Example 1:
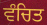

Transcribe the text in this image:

ਵੰਚਿਤ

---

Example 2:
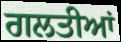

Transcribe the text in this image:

ਗਲਤੀਆਂ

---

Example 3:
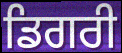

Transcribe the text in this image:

ਡਿਗਰੀ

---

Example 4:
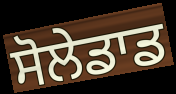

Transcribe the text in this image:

ਸੋਲੇਡਾਡ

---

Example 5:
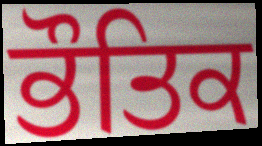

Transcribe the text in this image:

ਭੌਤਿਕ